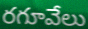
రగూవేలు